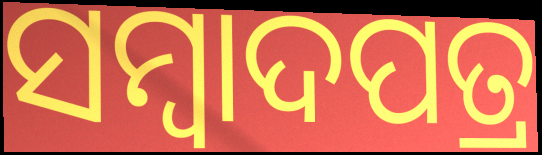
ସମ୍ବାଦପତ୍ର